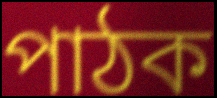
পাঠক